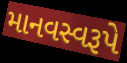
માનવસ્વરૂપે